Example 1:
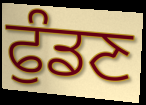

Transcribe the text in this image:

ਫੁੰਡਣ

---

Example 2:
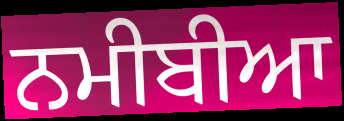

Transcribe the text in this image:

ਨਮੀਬੀਆ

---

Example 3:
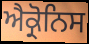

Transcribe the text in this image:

ਐਕ੍ਰੋਨਿਸ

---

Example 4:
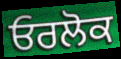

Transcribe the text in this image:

ਓਰਲੋਕ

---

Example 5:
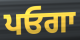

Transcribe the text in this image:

ਪਓਗਾ